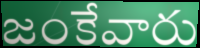
జంకేవారు